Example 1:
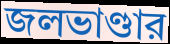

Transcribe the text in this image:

জলভাণ্ডার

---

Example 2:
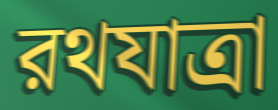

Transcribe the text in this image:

রথযাত্রা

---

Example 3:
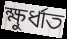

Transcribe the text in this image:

ক্ষুর্ধাত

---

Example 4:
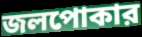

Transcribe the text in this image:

জলপোকার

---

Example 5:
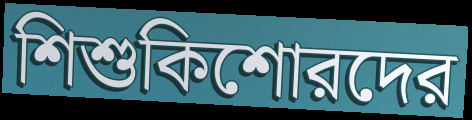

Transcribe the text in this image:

শিশুকিশোরদের